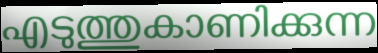
എടുത്തുകാണിക്കുന്ന